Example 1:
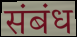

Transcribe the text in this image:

संबंध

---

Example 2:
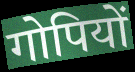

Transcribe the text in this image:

गोपियों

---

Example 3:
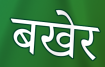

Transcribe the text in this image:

बखेर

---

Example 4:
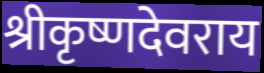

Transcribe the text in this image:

श्रीकृष्णदेवराय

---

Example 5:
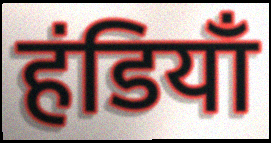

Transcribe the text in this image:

हंडियाँ